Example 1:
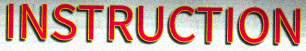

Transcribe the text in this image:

INSTRUCTION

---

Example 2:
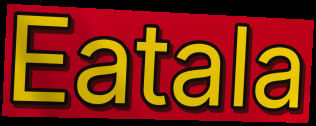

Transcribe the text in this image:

Eatala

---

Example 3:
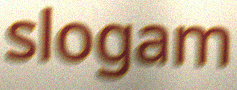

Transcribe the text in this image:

slogam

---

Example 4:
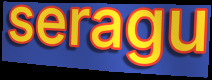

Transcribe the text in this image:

seragu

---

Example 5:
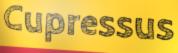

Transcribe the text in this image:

Cupressus